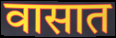
वासात